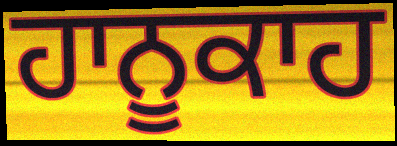
ਹਾਨੂਕਾਹ